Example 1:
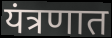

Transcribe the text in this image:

यंत्रणात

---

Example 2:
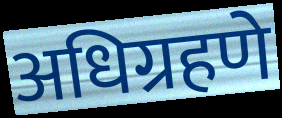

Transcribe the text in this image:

अधिग्रहणे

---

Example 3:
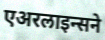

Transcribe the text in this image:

एअरलाइन्सने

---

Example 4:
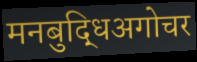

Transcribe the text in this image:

मनबुद्धिअगोचर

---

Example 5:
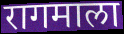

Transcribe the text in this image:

रागमाला